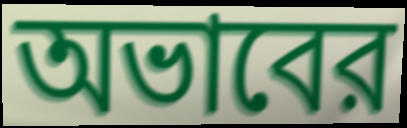
অভাবের